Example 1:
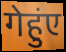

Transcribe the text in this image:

गेहुंए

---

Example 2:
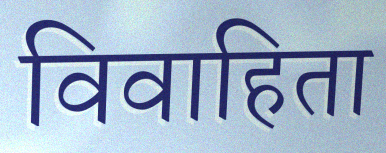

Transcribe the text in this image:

विवाहिता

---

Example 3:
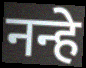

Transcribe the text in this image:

नन्हे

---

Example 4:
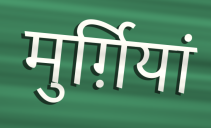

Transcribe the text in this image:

मुर्ग़ियां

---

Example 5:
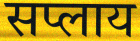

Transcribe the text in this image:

सप्लाय